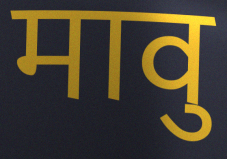
मावु